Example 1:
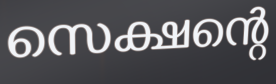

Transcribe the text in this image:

സെക്ഷന്റെ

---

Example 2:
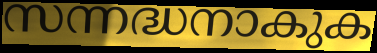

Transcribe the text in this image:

സന്നദ്ധനാകുക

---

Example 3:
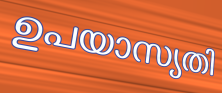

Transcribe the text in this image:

ഉപയാസ്യതി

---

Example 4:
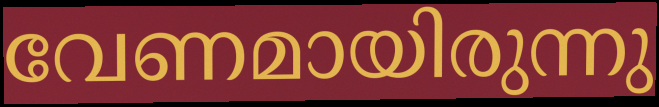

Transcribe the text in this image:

വേണമായിരുന്നു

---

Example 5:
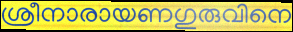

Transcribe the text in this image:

ശ്രീനാരായണഗുരുവിനെ